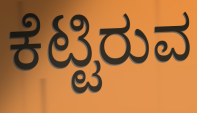
ಕೆಟ್ಟಿರುವ